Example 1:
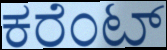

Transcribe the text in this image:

ಕರೆಂಟ್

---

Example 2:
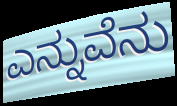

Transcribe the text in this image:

ಎನ್ನುವೆನು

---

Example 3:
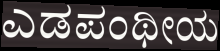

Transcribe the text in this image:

ಎಡಪಂಥೀಯ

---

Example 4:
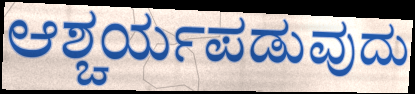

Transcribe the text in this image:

ಆಶ್ಚರ್ಯಪಡುವುದು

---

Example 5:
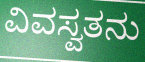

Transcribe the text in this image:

ವಿವಸ್ವತನು